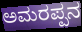
ಅಮರಪ್ಪನ